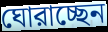
ঘোরাচ্ছেন